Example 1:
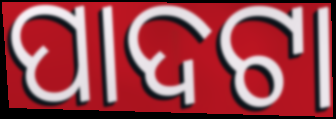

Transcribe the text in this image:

ପାଦଟା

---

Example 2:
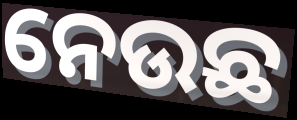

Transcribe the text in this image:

ନେଉଛ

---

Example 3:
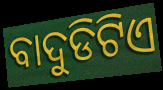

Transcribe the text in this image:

ବାଦୁଡିଟିଏ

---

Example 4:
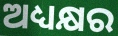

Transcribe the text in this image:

ଅଧ୍ୟକ୍ଷର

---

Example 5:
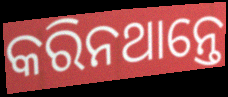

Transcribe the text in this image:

କରିନଥାନ୍ତେ